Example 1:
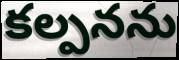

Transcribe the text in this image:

కల్పనను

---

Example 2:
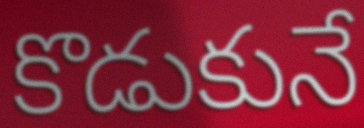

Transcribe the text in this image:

కొడుకునే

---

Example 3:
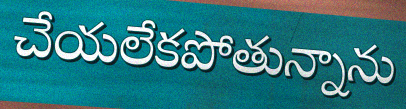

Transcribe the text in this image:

చేయలేకపోతున్నాను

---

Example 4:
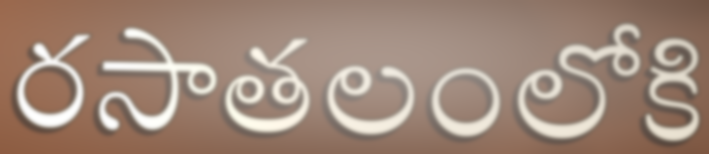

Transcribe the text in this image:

రసాతలంలోకి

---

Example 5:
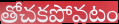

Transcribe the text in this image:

తోచకపోవటం